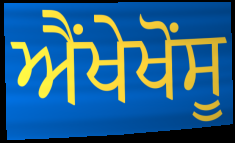
ਐਂਖੇਖੋਂਸੂ